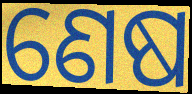
ଣେଷ